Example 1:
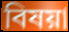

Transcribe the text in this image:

বিষয়া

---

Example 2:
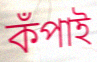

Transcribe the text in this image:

কঁপাই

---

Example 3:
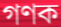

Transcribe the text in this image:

গণক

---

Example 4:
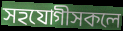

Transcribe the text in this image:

সহযোগীসকলে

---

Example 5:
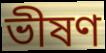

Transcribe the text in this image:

ভীষণ